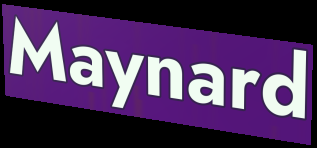
Maynard